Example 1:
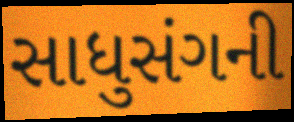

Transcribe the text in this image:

સાધુસંગની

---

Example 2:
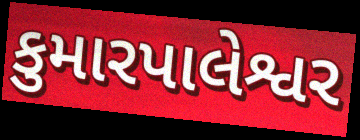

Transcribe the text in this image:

કુમારપાલેશ્વર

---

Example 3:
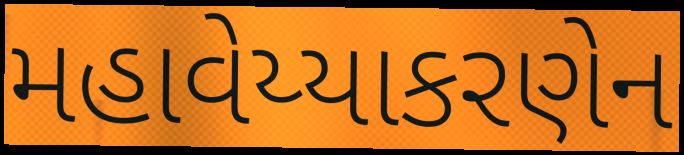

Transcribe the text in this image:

મહાવેય્યાકરણેન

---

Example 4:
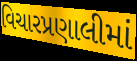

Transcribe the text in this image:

વિચારપ્રણાલીમાં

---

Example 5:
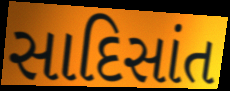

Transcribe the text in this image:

સાદિસાંત